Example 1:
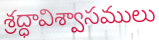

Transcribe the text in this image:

శ్రద్ధావిశ్వాసములు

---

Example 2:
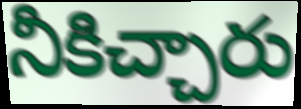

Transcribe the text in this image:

నీకిచ్చారు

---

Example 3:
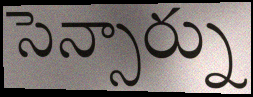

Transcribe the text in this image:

సెన్సార్ను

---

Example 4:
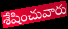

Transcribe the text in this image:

శేషించువారు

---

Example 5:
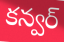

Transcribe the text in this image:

కన్వర్